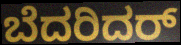
ಬೆದರಿದರ್